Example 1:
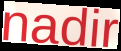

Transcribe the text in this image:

nadir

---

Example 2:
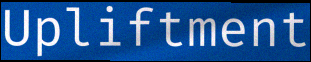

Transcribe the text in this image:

Upliftment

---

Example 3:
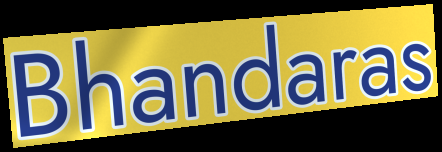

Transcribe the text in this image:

Bhandaras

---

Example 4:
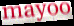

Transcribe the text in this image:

mayoo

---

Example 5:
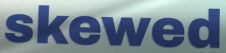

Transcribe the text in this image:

skewed